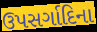
ઉપસર્ગાદિના